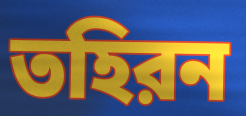
তহিরন